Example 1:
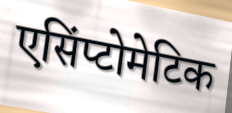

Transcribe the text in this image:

एसिंप्टोमेटिक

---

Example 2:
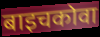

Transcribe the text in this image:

बाइचकोवा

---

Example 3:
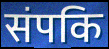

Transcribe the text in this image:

संपकि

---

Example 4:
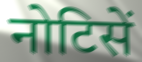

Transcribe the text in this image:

नोटिसें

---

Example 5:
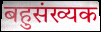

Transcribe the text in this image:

बहुसंख्यक